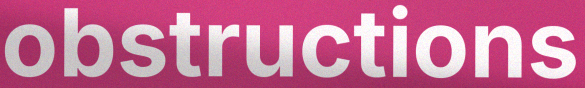
obstructions